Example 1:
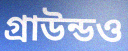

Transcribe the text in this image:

গ্রাউন্ডও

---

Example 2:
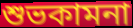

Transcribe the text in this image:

শুভকামনা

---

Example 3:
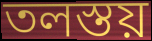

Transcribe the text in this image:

তলস্তয়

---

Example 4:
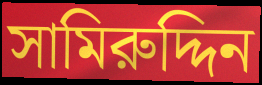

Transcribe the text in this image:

সামিরুদ্দিন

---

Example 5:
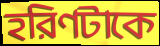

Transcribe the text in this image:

হরিণটাকে